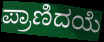
ಪ್ರಾಣಿದಯೆ